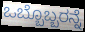
ಒಬ್ಬೊಬ್ಬರನ್ನೆ